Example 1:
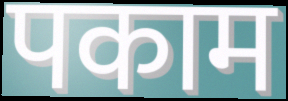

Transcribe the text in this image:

पकाम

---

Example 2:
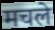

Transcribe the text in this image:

मचले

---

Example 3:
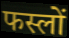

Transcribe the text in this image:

फस्लों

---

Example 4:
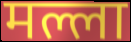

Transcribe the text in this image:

मल्ला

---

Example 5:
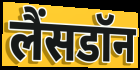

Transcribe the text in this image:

लैंसडॉन